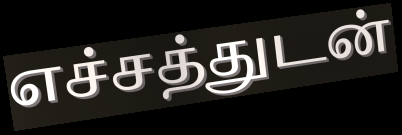
எச்சத்துடன்